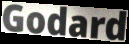
Godard